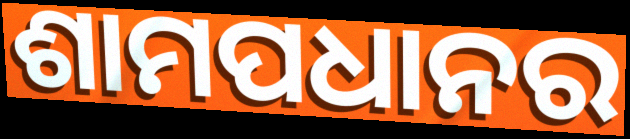
ଶାମପଧାନର